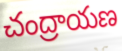
చంద్రాయణ